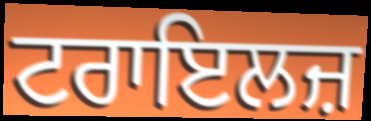
ਟਰਾਇਲਜ਼